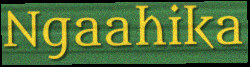
Ngaahika